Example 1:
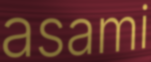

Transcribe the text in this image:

asami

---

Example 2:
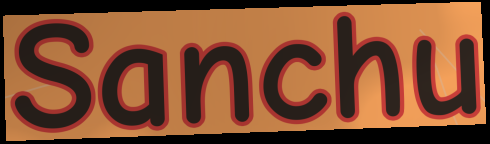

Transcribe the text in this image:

Sanchu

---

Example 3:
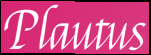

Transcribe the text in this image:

Plautus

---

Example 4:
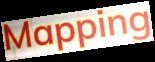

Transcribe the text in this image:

Mapping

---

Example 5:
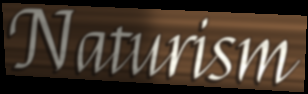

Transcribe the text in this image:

Naturism